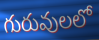
గురువులలో